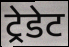
ट्रेडेट